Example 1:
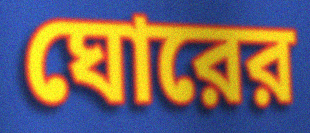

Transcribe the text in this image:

ঘোরের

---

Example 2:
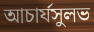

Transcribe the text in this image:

আচার্যসুলভ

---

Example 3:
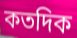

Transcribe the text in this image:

কতদিক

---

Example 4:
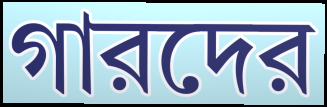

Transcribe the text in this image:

গারদের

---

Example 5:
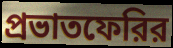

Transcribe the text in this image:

প্রভাতফেরির